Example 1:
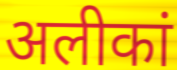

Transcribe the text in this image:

अलीकां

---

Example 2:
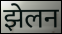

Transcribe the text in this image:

झेलन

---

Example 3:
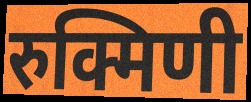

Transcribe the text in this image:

रुक्मिणी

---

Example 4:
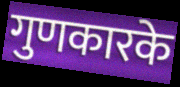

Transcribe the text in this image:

गुणकारके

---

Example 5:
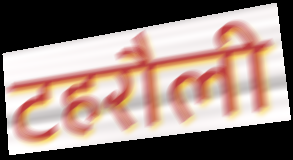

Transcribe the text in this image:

टहरौली